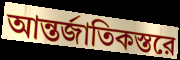
আন্তর্জাতিকস্তরে